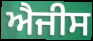
ਐਜੀਸ